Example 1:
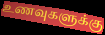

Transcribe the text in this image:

உணவுகளுக்கு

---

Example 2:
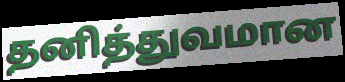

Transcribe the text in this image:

தனித்துவமான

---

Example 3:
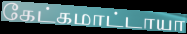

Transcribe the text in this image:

கேட்கமாட்டாயா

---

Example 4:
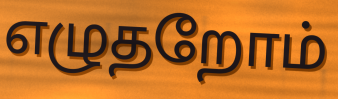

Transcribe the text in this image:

எழுதறோம்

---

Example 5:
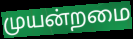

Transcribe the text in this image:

முயன்றமை